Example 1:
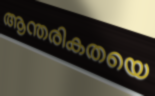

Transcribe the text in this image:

ആന്തരികതയെ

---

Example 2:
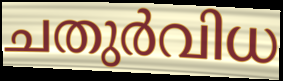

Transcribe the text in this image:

ചതുർവിധ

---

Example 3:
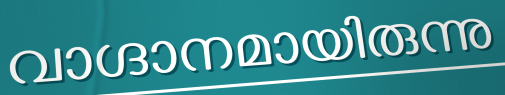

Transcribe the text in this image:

വാഗ്ദാനമായിരുന്നു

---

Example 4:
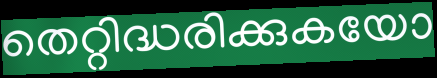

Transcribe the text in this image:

തെറ്റിദ്ധരിക്കുകയോ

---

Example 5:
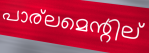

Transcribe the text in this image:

പാര്ലമെന്റില്